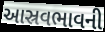
આસ્રવભાવની